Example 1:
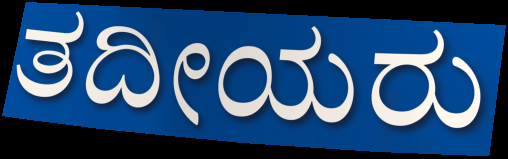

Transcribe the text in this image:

ತದೀಯರು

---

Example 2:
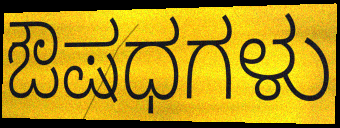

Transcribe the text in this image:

ಔಷಧಗಳು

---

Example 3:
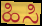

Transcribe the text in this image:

ಹಿಸಿ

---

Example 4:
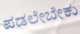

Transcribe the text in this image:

ಪಡಲೇಬೇಕು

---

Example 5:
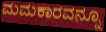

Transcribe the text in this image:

ಮಮಕಾರವನ್ನೂ